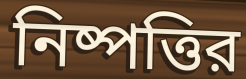
নিষ্পত্তির